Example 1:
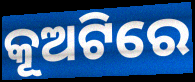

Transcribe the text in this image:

କୂଅଟିରେ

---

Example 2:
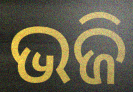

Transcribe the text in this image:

ଭଜି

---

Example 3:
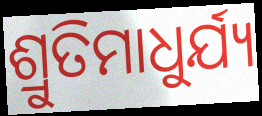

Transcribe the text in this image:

ଶ୍ରୁତିମାଧୁର୍ଯ୍ୟ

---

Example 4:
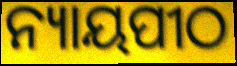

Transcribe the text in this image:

ନ୍ୟାୟପୀଠ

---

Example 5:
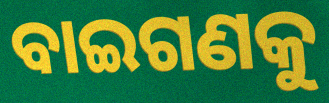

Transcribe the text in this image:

ବାଇଗଣକୁ